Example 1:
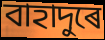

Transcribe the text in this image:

বাহাদুৰে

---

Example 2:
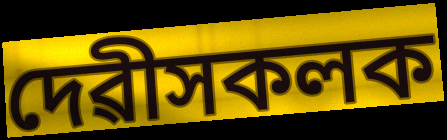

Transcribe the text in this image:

দেৱীসকলক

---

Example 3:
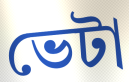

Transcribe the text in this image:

ভেটা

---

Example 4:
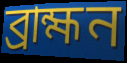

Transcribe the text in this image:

ব্ৰাহ্মন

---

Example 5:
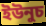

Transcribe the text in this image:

ইউনুচ